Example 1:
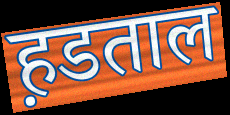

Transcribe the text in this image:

ह़डताल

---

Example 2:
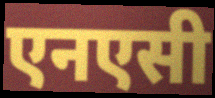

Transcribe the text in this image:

एनएसी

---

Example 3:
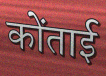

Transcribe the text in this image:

कोंताई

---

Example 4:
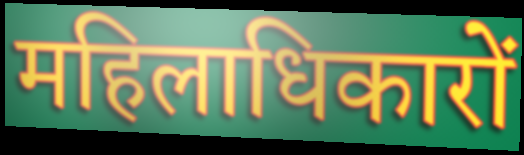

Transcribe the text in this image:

महिलाधिकारों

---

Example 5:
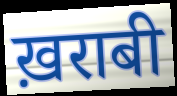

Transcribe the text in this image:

ख़राबी